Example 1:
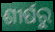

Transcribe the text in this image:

ଶୀର୍ଷରୁ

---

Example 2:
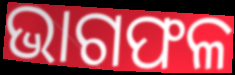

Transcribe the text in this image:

ଭାଗଫଳ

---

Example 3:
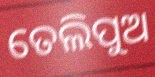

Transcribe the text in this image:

ତେଲିପୁଅ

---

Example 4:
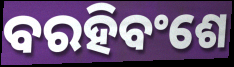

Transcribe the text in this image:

ବରହିବଂଶେ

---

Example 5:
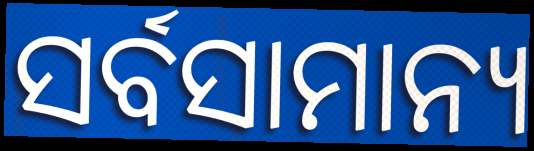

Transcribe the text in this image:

ସର୍ବସାମାନ୍ୟ